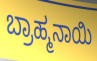
ಬ್ರಾಹ್ಮನಾಯಿ